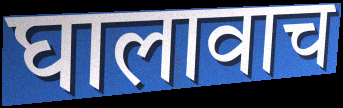
घालावाच